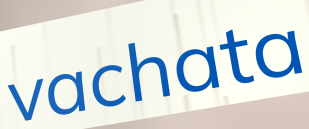
vachata